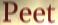
Peet